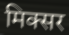
मिक्सर